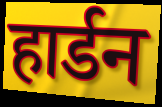
हार्डन